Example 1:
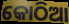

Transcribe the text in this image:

କୋଠିଆ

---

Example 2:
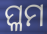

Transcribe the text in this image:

ପ୍ଳମ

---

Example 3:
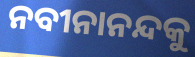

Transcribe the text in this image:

ନବୀନାନନ୍ଦକୁ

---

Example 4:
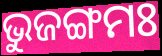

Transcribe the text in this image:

ଭୁଜଙ୍ଗମଃ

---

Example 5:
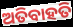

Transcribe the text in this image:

ଅତିବାହତି